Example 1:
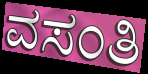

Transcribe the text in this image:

ವಸಂತಿ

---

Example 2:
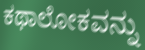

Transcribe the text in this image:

ಕಥಾಲೋಕವನ್ನು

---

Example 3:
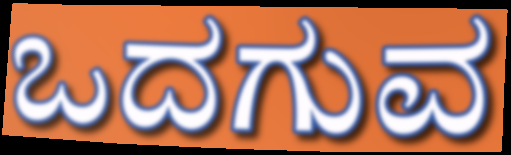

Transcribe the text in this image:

ಒದಗುವ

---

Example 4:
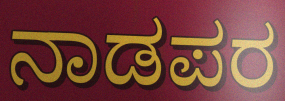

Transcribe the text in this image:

ನಾಡಪರ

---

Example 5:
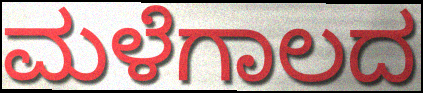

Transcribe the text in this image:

ಮಳೆಗಾಲದ